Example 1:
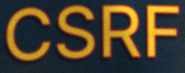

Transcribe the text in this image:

CSRF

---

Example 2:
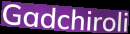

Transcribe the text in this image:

Gadchiroli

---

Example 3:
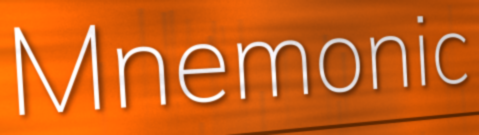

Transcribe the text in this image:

Mnemonic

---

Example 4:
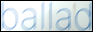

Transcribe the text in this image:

ballad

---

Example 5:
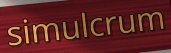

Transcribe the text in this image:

simulcrum